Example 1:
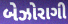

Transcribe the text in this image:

બેઝોરાગી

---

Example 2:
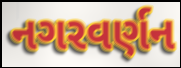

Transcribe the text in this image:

નગરવર્ણન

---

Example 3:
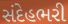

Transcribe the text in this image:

સંદેહભરી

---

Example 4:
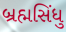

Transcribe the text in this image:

બ્રહ્મસિંધુ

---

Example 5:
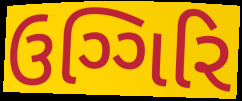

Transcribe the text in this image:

ઉગ્ગિરિ